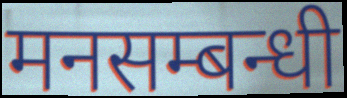
मनसम्बन्धी